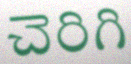
చెరిగి